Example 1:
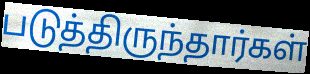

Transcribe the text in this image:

படுத்திருந்தார்கள்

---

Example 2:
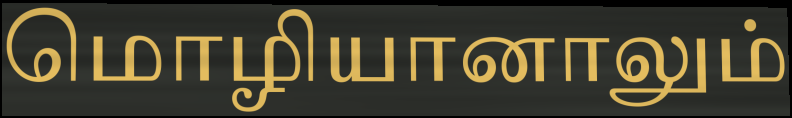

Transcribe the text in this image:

மொழியானாலும்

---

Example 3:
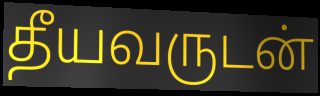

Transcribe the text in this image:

தீயவருடன்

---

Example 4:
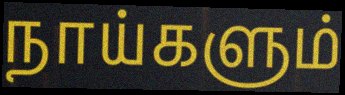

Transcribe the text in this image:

நாய்களும்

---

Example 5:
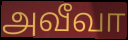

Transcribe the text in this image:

அவீவா